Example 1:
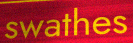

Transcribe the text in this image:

swathes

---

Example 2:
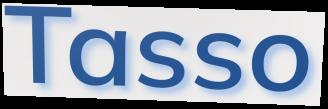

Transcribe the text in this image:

Tasso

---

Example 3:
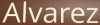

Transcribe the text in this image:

Alvarez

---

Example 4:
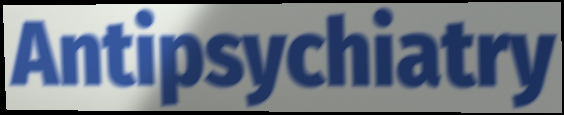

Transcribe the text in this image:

Antipsychiatry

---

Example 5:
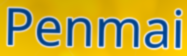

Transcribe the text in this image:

Penmai